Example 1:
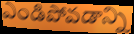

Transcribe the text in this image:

ఎండిపోవడాన్ని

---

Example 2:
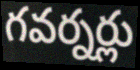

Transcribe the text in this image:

గవర్నర్లు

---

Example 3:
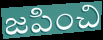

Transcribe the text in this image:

జపించి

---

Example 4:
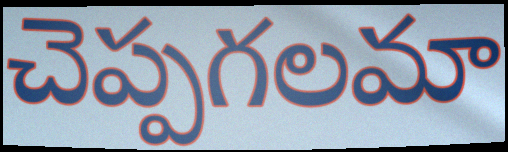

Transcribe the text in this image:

చెప్పగలమా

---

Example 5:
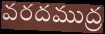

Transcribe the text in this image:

వరదముద్ర